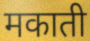
मकाती